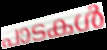
പാടകൾ